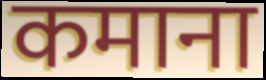
कमाना